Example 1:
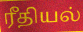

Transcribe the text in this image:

ரீதியல்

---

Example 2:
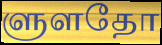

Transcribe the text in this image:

ளுளதோ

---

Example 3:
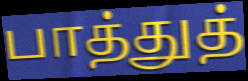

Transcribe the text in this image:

பாத்துத்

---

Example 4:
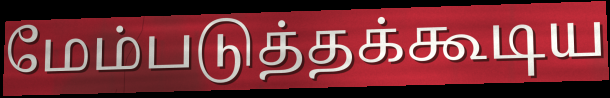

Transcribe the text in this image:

மேம்படுத்தக்கூடிய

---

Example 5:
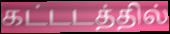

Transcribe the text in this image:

கட்டடத்தில்